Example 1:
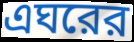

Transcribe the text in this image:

এঘরের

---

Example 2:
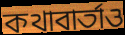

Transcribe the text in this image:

কথাবার্তাও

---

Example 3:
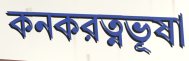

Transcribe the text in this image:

কনকরত্নভূষা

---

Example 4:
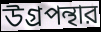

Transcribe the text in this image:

উগ্রপন্থার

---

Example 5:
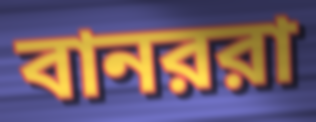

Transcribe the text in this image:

বানররা